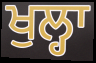
ਖੁਲ੍ਹਾ